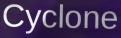
Cyclone